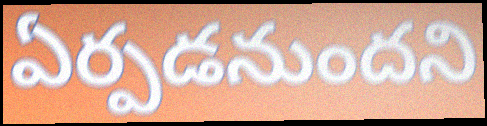
ఏర్పడనుందని